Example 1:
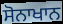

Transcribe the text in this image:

ਸੋਨਾਖਾਨ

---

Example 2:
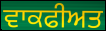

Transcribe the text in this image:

ਵਾਕਫੀਅਤ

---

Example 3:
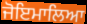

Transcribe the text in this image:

ਜੋਇਮਾਲਿਆ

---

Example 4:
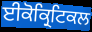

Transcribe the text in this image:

ਈਕੋਕ੍ਰਿਟਿਕਲ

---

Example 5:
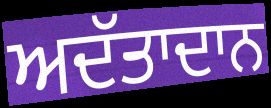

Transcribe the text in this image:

ਅਦੱਤਾਦਾਨ